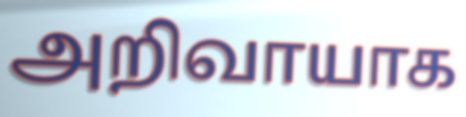
அறிவாயாக